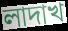
লাদাখ